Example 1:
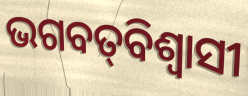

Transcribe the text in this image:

ଭଗବତ୍‌ବିଶ୍ଵାସୀ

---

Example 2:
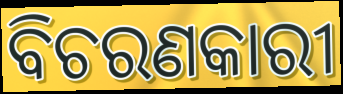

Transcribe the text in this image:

ବିଚରଣକାରୀ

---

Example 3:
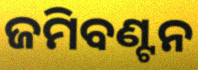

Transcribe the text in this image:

ଜମିବଣ୍ଟନ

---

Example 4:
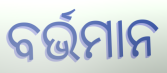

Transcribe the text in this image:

ବର୍ଭମାନ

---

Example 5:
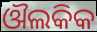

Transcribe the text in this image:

ଔଲକିକ